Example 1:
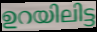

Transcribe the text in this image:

ഉറയിലിട്ട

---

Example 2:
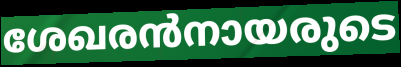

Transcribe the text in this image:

ശേഖരൻനായരുടെ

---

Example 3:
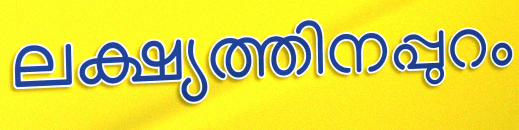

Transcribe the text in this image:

ലക്ഷ്യത്തിനപ്പുറം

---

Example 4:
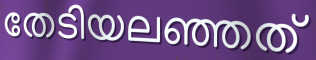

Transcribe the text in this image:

തേടിയലഞ്ഞത്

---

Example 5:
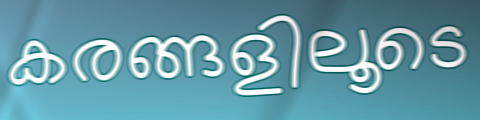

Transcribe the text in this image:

കരങ്ങളിലൂടെ